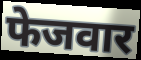
फेजवार